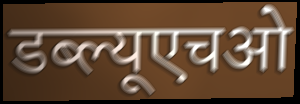
डब्ल्यूएचओ